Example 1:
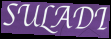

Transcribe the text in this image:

SULADI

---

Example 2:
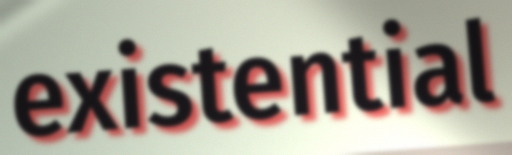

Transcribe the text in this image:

existential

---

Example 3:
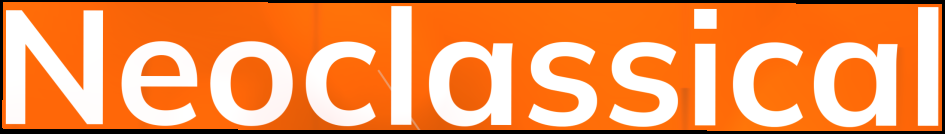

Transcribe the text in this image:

Neoclassical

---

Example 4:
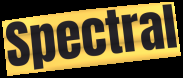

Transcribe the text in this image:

Spectral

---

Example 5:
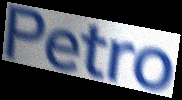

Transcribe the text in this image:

Petro